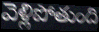
వెళ్లిపోతుంది